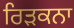
ਰਿੜਕਨਾ